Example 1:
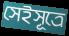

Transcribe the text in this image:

সেইসূত্রে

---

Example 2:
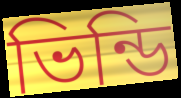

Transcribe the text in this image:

ভিন্ডি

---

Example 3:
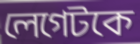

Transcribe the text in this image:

লেগেটকে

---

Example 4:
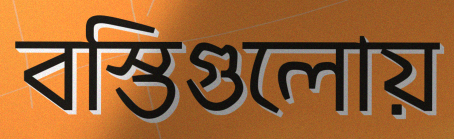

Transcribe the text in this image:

বস্তিগুলোয়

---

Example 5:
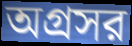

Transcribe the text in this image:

অগ্রসর